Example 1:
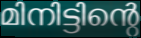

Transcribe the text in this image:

മിനിട്ടിന്റെ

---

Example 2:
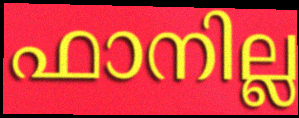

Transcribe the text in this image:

ഫാനില്ല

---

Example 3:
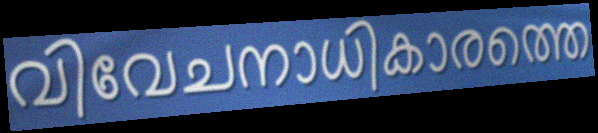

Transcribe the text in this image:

വിവേചനാധികാരത്തെ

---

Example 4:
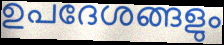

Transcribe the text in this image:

ഉപദേശങ്ങളും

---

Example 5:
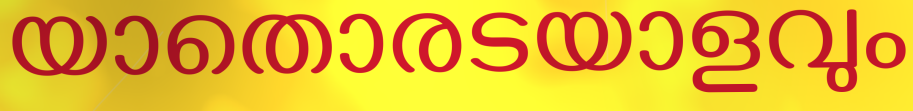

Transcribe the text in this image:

യാതൊരടയാളവും